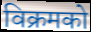
विक्रमको